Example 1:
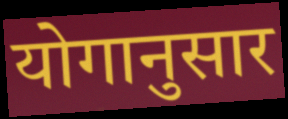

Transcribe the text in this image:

योगानुसार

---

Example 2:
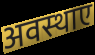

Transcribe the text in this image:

अवस्थाए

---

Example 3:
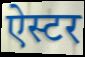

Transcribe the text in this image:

ऐस्टर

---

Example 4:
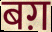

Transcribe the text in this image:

बग़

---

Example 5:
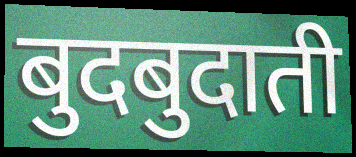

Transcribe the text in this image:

बुदबुदाती